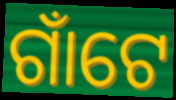
ଗାଁଟେ